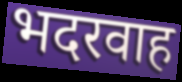
भदरवाह